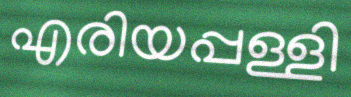
എരിയപ്പള്ളി